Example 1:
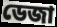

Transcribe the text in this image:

ডেজা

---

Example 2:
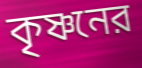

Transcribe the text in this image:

কৃষ্ণনের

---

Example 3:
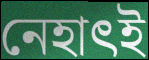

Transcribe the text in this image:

নেহাৎই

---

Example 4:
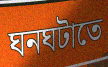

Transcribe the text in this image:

ঘনঘটাতে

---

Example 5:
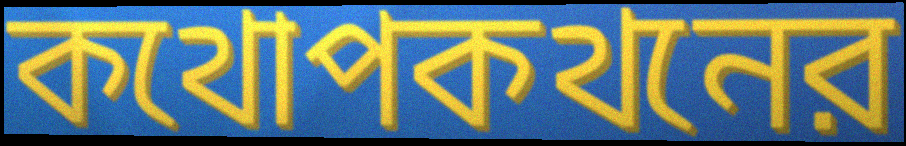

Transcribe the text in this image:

কথোপকথনের